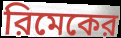
রিমেকের